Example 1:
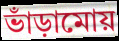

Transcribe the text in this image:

ভাঁড়ামোয়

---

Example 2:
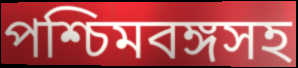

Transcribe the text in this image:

পশ্চিমবঙ্গসহ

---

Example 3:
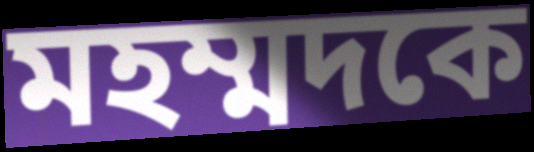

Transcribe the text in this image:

মহম্মদকে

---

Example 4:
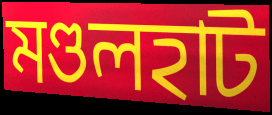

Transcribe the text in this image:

মণ্ডলহাট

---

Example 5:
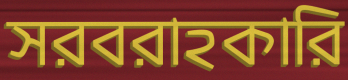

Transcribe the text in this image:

সরবরাহকারি